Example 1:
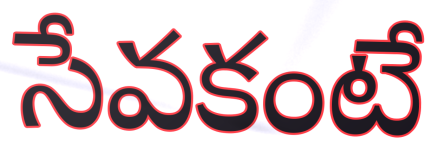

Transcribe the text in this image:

సేవకంటే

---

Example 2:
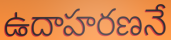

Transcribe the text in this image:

ఉదాహరణనే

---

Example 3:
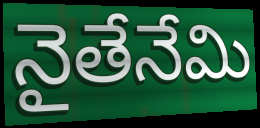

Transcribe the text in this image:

నైతేనేమి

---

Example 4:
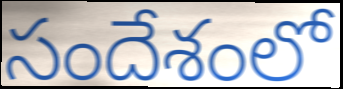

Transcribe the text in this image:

సందేశంలో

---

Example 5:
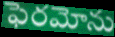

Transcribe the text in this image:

ఫెరమోను